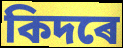
কিদৰে